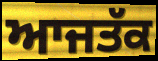
ਆਜਤੱਕ